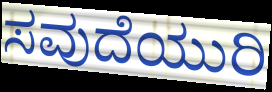
ಸವುದೆಯುರಿ